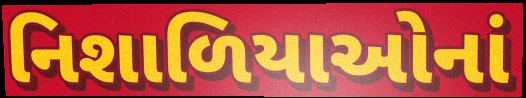
નિશાળિયાઓનાં